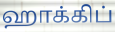
ஹாக்கிப்